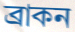
ব্রাকন